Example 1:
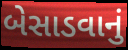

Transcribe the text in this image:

બેસાડવાનું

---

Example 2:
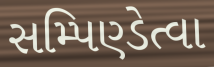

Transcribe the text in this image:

સમ્પિણ્ડેત્વા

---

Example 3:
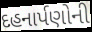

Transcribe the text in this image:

દહનાર્પણોની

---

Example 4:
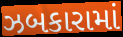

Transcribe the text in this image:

ઝબકારામાં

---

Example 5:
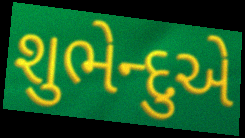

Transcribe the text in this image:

શુભેન્દુએ